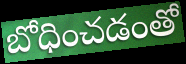
బోధించడంతో